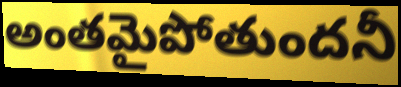
అంతమైపోతుందనీ